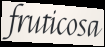
fruticosa